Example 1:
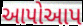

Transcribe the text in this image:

આપોઆપ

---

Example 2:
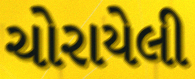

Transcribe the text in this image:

ચોરાયેલી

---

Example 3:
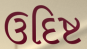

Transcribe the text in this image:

ઉદિષ્ટ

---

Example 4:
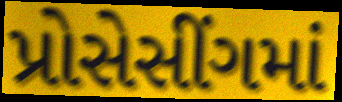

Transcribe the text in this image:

પ્રોસેસીંગમાં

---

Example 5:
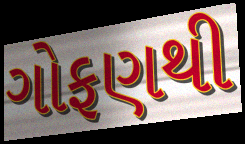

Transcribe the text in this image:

ગોફણથી